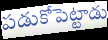
పడుకోపెట్టాడు